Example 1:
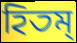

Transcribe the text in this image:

হিতম্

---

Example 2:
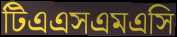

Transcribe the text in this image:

টিএএসএমএসি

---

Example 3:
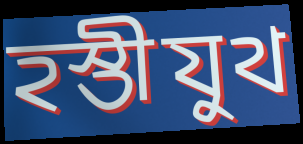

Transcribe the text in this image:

হস্তীযুথ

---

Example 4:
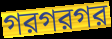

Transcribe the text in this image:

গরগরগর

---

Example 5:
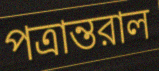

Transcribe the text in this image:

পত্রান্তরাল